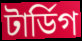
টার্ডিগ